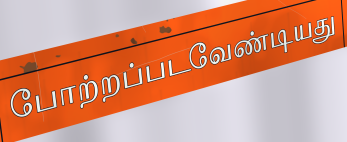
போற்றப்படவேண்டியது